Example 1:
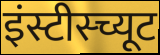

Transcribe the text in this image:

इंस्टीस्च्यूट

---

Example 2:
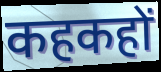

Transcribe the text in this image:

कहकहों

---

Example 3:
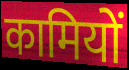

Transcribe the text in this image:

कामियों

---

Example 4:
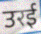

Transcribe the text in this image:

उरई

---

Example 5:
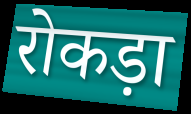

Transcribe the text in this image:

रोकड़ा